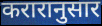
करारानुसार